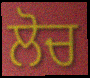
ਲੋਚ